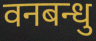
वनबन्धु